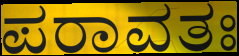
ಪರಾವತಃ